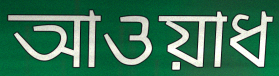
আওয়াধ